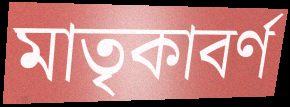
মাতৃকাবর্ণ